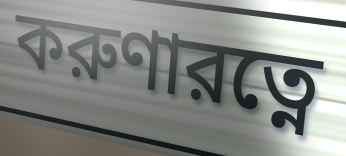
করুণারত্নে